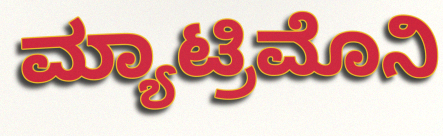
ಮ್ಯಾಟ್ರಿಮೊನಿ